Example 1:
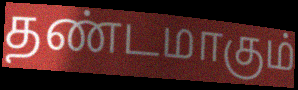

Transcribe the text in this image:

தண்டமாகும்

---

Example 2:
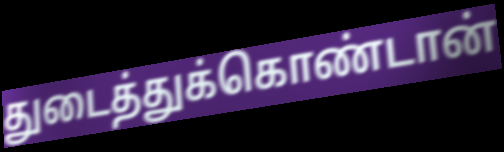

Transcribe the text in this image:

துடைத்துக்கொண்டான்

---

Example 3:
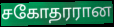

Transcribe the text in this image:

சகோதரரான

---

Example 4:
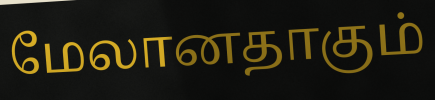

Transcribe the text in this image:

மேலானதாகும்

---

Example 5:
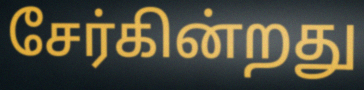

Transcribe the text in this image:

சேர்கின்றது